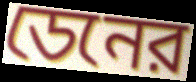
ডেনের